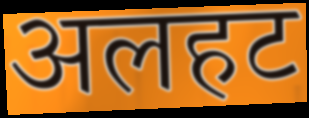
अलहट